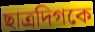
ছাত্রদিগকে